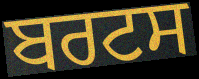
ਬਰਟਸ